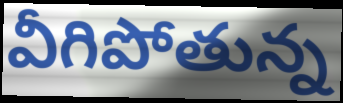
వీగిపోతున్న